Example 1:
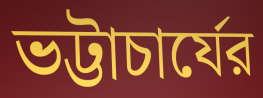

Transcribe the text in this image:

ভট্টাচার্যের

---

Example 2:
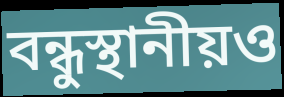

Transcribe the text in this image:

বন্ধুস্থানীয়ও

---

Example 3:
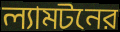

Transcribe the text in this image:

ল্যামটনের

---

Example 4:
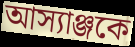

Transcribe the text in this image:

আস্যাঞ্জকে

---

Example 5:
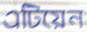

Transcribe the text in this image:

এটিয়েন